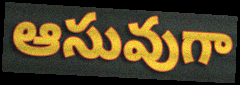
ఆసువుగా